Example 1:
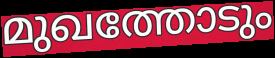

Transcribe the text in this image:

മുഖത്തോടും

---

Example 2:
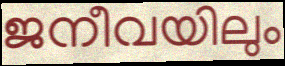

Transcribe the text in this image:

ജനീവയിലും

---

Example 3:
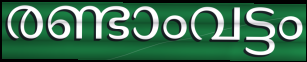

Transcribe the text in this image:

രണ്ടാംവട്ടം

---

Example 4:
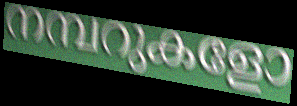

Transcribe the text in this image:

നമ്പറുകളോ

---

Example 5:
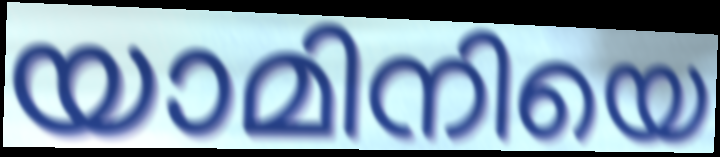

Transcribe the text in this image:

യാമിനിയെ